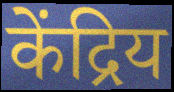
केंद्रिय